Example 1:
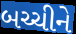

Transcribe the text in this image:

બચ્ચીને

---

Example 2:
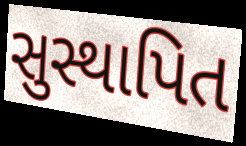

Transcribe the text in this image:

સુસ્થાપિત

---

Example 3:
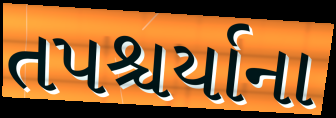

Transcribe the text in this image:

તપશ્ચર્યાના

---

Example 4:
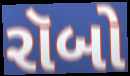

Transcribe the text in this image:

રૉબો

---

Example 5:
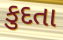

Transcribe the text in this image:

કુદતા